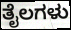
ತೈಲಗಳು